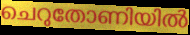
ചെറുതോണിയിൽ